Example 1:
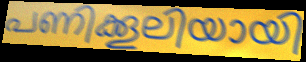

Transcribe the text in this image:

പണിക്കൂലിയായി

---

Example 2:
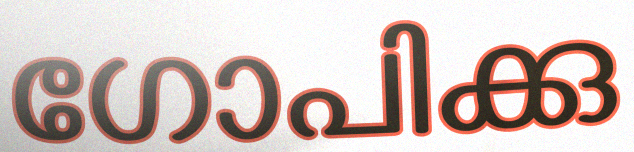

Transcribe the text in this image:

ഗോപിക്കു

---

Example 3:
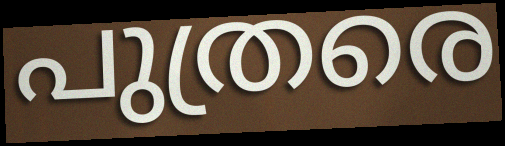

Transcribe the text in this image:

പുത്രരെ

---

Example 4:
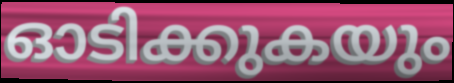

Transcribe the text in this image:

ഓടിക്കുകയും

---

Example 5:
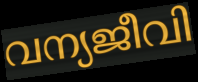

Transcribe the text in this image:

വന്യജീവി